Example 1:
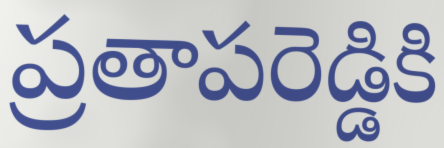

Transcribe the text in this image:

ప్రతాపరెడ్డికి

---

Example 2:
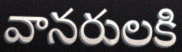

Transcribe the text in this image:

వానరులకి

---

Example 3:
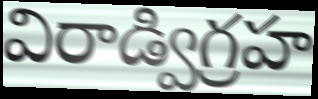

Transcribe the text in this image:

విరాడ్విగ్రహ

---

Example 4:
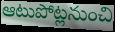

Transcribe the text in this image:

ఆటుపోట్లనుంచి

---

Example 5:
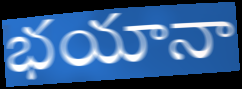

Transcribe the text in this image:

భయానా